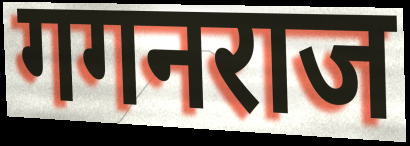
गगनराज